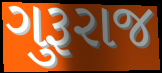
ગુરૂરાજ